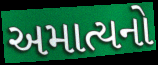
અમાત્યનો